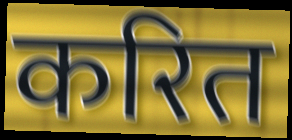
करित